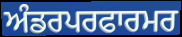
ਅੰਡਰਪਰਫਾਰਮਰ